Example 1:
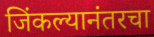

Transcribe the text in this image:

जिंकल्यानंतरचा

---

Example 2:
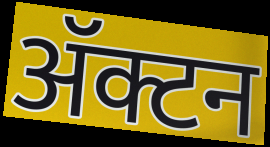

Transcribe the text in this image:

ॲक्टन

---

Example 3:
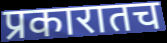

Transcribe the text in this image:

प्रकारातच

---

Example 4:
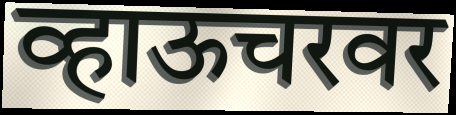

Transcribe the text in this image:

व्हाऊचरवर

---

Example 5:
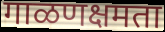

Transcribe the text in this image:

गाळणक्षमता